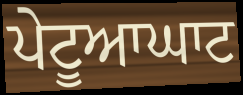
ਪੇਟੂਆਘਾਟ